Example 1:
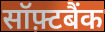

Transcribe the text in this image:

सॉफ़्टबैंक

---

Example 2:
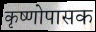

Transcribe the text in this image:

कृष्णोपासक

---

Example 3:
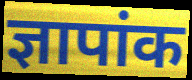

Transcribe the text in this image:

ज्ञापांक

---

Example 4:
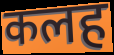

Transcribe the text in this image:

कलह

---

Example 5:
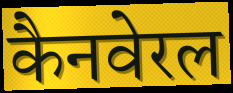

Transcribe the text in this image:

कैनवेरल